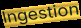
Ingestion